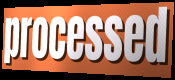
processed